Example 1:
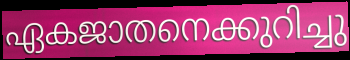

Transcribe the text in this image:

ഏകജാതനെക്കുറിച്ചു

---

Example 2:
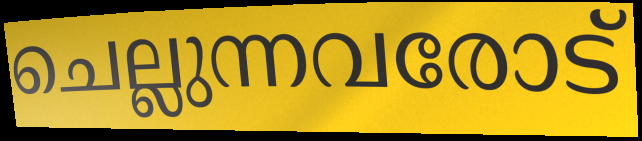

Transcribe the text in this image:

ചെല്ലുന്നവരോട്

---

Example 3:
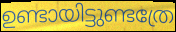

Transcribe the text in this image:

ഉണ്ടായിട്ടുണ്ടത്രേ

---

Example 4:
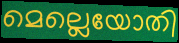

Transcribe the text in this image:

മെല്ലെയോതി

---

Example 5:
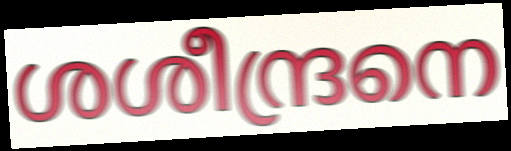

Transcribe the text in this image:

ശശീന്ദ്രനെ